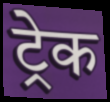
ट्रेक